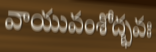
వాయువంశోద్భవః